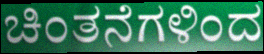
ಚಿಂತನೆಗಳಿಂದ